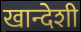
खान्देशी